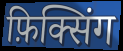
फ़िक्सिंग